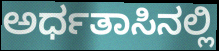
ಅರ್ಧತಾಸಿನಲ್ಲಿ